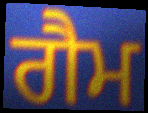
ਗੈਮ